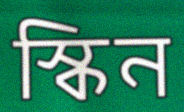
স্কিন